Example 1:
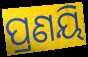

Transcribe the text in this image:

ପ୍ରଣୟି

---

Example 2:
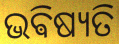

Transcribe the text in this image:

ଭଵିଷ୍ୟତି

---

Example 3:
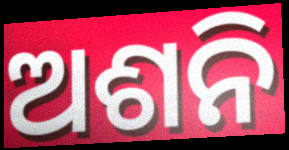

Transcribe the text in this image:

ଅଶନି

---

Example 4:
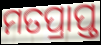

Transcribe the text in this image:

ମତପ୍ରାପ୍ତ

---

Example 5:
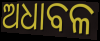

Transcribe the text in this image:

ଅଧାବଳ